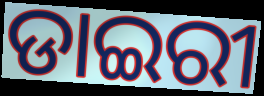
ଡାଇରୀ